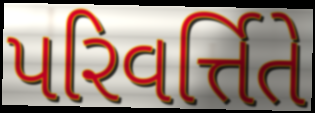
પરિવર્ત્તિતે